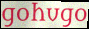
gohugo